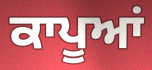
ਕਾਪੂਆਂ